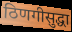
ठिणगीसुद्धा